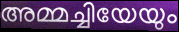
അമ്മച്ചിയേയും